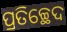
ପ୍ରତିଚ୍ଛେଦ